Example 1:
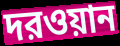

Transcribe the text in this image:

দরওয়ান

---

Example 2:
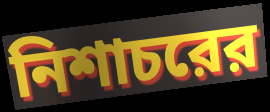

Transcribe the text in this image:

নিশাচরের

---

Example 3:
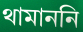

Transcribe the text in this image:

থামাননি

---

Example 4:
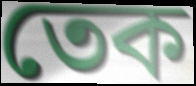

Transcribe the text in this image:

তেক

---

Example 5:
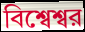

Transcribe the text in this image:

বিশ্বেশ্বর